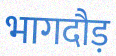
भागदौड़